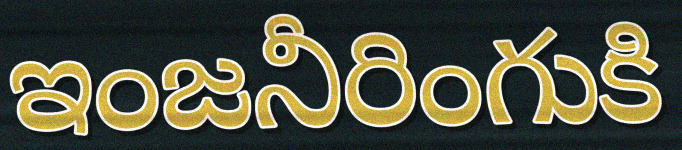
ఇంజనీరింగుకి